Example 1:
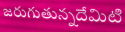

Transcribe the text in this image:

జరుగుతున్నదేమిటి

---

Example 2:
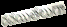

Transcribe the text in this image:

రచయితలుగా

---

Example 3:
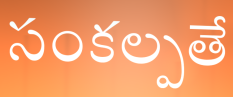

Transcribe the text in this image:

సంకల్పతే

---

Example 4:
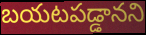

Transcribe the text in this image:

బయటపడ్డానని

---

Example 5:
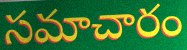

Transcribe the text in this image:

సమాచారం